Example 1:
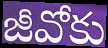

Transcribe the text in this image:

జీవోకు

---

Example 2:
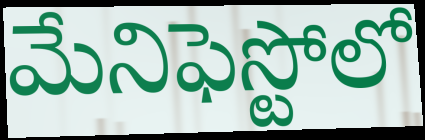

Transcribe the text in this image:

మేనిఫెస్టోలో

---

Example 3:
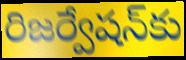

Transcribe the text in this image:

రిజర్వేషన్‌కు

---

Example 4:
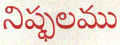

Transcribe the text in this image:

నిష్ఫలము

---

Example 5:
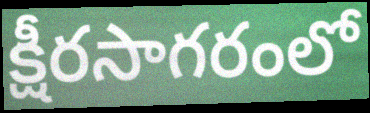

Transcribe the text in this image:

క్షీరసాగరంలో